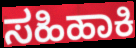
ಸಹಿಹಾಕಿ